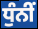
ਧੁੰਨੀਂ